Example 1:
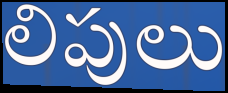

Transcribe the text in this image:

లిపులు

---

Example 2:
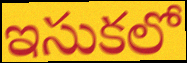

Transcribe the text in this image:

ఇసుకలో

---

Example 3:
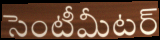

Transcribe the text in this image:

సెంటీమీటర్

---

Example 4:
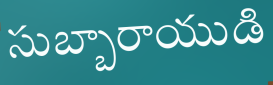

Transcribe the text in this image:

సుబ్బారాయుడి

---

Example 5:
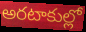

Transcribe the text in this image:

అరటాకుల్లో